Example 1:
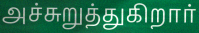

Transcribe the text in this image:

அச்சுறுத்துகிறார்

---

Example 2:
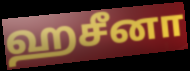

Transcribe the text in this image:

ஹசீனா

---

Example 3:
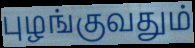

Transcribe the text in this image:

புழங்குவதும்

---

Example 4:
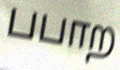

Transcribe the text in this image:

பபாற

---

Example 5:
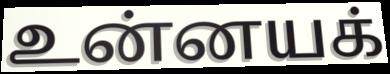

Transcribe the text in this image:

உன்னயக்